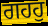
ਗਹਹੁ